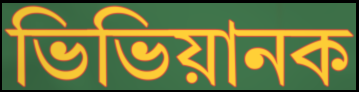
ভিভিয়ানক